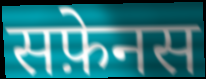
सफ़ेनस